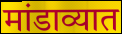
मांडाव्यात